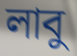
লাবু